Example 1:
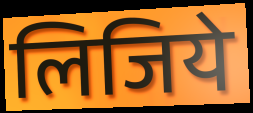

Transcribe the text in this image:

लिजिये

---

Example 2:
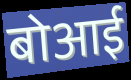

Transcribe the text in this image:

बोआई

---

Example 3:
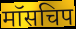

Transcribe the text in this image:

मॉसचिप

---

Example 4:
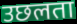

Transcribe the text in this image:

उछलता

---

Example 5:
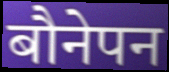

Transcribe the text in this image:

बौनेपन